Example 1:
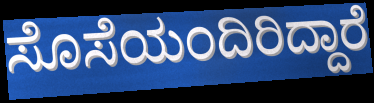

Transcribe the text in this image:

ಸೊಸೆಯಂದಿರಿದ್ದಾರೆ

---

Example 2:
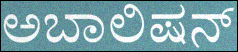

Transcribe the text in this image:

ಅಬಾಲಿಷನ್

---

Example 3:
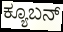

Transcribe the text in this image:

ಕ್ಯೂಬನ್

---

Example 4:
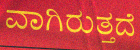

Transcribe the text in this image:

ವಾಗಿರುತ್ತದೆ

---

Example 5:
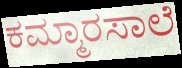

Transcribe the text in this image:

ಕಮ್ಮಾರಸಾಲೆ